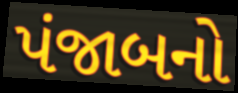
પંજાબનો